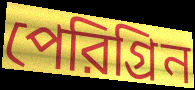
পেরিগ্রিন